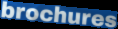
brochures